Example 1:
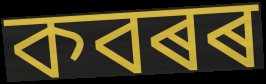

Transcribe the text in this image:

কবৰৰ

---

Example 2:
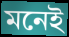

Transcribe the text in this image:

মনেই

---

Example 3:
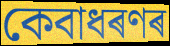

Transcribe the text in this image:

কেবাধৰণৰ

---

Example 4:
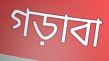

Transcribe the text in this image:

গড়াবা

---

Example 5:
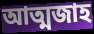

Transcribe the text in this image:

আত্মজাহ